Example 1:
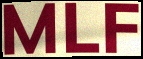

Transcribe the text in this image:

MLF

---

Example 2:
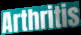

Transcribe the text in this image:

Arthritis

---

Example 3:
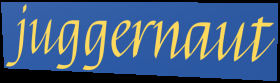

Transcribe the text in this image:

juggernaut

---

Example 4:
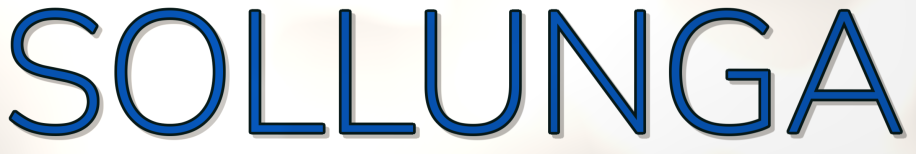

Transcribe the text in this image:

SOLLUNGA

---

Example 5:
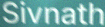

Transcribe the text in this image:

Sivnath